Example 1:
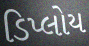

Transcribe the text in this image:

ડિપ્લોય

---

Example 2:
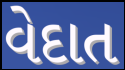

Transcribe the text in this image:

વેદાત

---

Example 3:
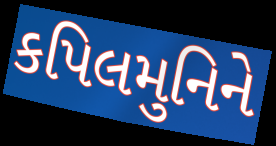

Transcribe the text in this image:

કપિલમુનિને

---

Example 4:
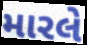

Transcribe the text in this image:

મારલે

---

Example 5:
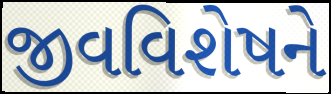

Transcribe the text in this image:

જીવવિશેષને